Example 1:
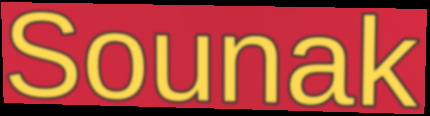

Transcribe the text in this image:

Sounak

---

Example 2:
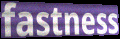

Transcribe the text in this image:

fastness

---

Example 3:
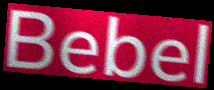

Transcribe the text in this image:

Bebel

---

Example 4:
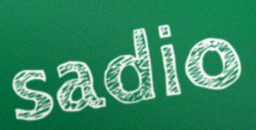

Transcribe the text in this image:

sadio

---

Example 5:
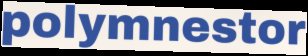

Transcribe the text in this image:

polymnestor